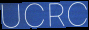
UCRC